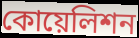
কোয়েলিশন